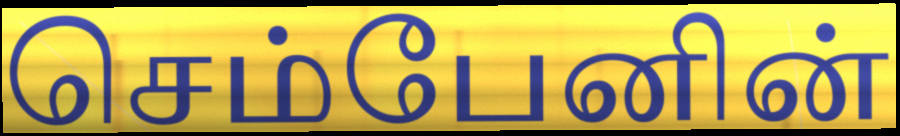
செம்பேனின்